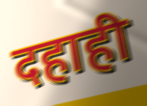
दहाही